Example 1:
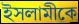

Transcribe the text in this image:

ইসলামীকে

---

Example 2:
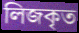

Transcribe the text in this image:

লিজকৃত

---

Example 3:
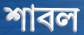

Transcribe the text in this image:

শাবল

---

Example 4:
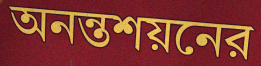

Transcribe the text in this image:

অনন্তশয়নের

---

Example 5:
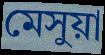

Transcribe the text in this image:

মেসুয়া